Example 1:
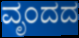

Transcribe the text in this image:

ವೃಂದದ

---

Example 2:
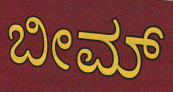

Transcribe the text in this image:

ಬೀಮ್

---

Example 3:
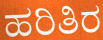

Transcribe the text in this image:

ಹರಿತಿರ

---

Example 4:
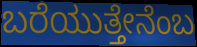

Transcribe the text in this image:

ಬರೆಯುತ್ತೇನೆಂಬ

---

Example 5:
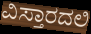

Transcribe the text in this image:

ವಿಸ್ತಾರದಲಿ